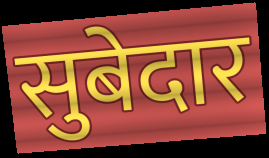
सुबेदार